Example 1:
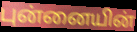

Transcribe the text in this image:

புன்னையின்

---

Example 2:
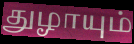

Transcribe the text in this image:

துழாயும்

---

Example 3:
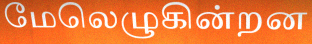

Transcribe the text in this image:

மேலெழுகின்றன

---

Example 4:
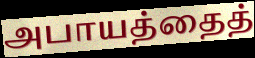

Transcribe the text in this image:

அபாயத்தைத்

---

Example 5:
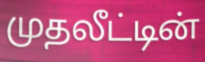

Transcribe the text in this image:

முதலீட்டின்